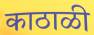
काठाळी